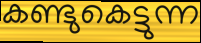
കണ്ടുകെട്ടുന്ന